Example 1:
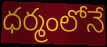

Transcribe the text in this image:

ధర్మంలోనే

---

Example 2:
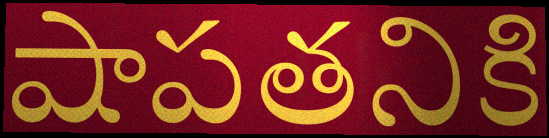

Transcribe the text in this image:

షాపతనికి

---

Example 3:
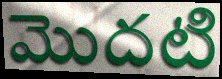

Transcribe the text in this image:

మొదటి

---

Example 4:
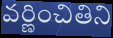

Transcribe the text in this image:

వర్ణించితిని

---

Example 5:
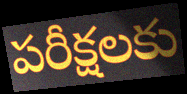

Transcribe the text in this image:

పరీక్షలకు